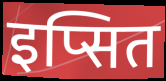
इप्सित